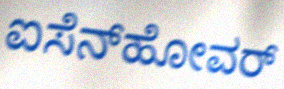
ಐಸೆನ್‍ಹೋವರ್